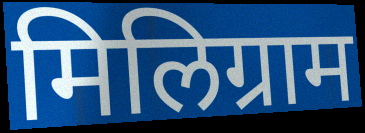
मिलिग्राम